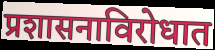
प्रशासनाविरोधात